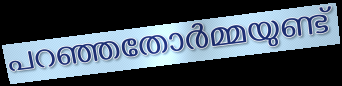
പറഞ്ഞതോർമ്മയുണ്ട്